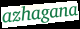
azhagana